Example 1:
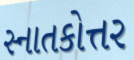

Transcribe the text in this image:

સ્નાતકોત્તર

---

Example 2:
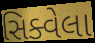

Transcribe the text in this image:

સિક્વેલા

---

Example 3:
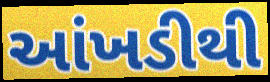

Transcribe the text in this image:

આંખડીથી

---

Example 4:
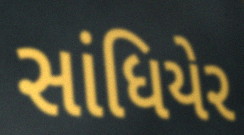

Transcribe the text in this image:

સાંધિયેર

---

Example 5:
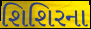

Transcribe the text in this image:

શિશિરના